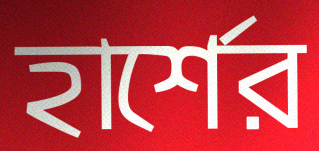
হার্শের